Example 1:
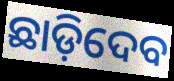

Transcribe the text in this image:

ଛାଡ଼ିଦେବ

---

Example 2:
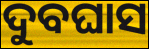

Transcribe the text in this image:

ଦୁବଘାସ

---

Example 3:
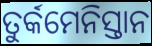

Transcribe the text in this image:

ତୁର୍କମେନିସ୍ତାନ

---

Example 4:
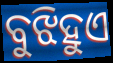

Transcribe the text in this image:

ବୁଝିହୁଏ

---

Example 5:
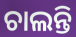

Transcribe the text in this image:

ଚାଲନ୍ତି